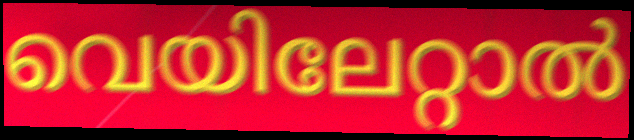
വെയിലേറ്റാൽ